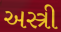
અસ્ત્રી